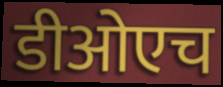
डीओएच